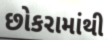
છોકરામાંથી